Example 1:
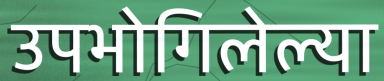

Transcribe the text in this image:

उपभोगिलेल्या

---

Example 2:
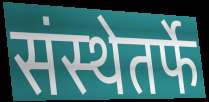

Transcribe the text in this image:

संस्थेतर्फे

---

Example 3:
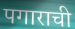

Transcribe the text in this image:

पगाराची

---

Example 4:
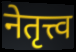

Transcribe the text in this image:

नेतृत्त्व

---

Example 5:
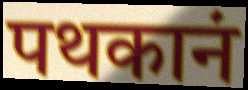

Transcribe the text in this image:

पथकानं